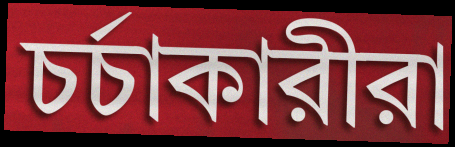
চর্চাকারীরা